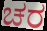
ಚರ